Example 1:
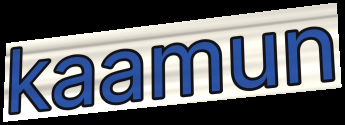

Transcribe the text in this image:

kaamun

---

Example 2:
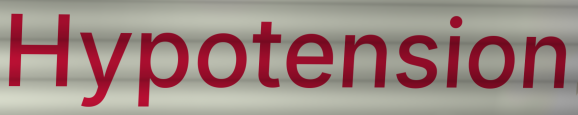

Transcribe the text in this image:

Hypotension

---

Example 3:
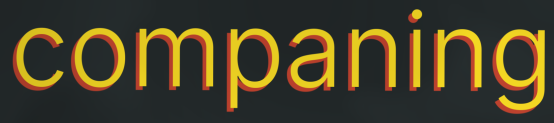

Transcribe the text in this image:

companing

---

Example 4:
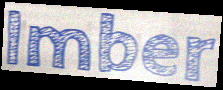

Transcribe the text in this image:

Imber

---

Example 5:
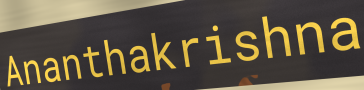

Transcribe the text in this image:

Ananthakrishna